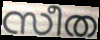
സീത